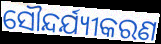
ସୌନ୍ଦର୍ଯ୍ୟୀକରଣ